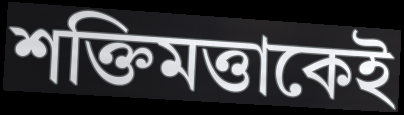
শক্তিমত্তাকেই